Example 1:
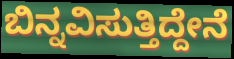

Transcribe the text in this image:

ಬಿನ್ನವಿಸುತ್ತಿದ್ದೇನೆ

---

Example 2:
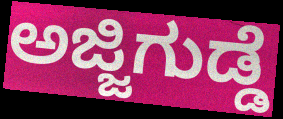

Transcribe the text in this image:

ಅಜ್ಜಿಗುಡ್ಡೆ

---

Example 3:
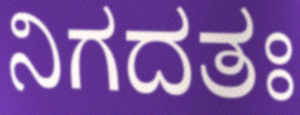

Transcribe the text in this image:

ನಿಗದತಃ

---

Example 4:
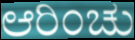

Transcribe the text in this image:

ಆರಿಂಚು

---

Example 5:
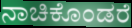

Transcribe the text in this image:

ನಾಚಿಕೊಂಡರೆ